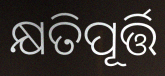
କ୍ଷତିପୂର୍ତ୍ତି